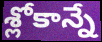
శ్లోకాన్నే